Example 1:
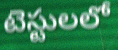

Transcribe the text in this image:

టెస్టులలో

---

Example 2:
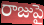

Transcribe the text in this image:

రాజుపై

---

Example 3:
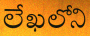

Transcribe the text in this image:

లేఖలోని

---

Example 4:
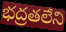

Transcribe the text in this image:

భద్రతలేని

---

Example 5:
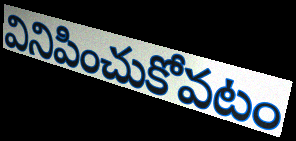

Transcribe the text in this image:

వినిపించుకోవటం